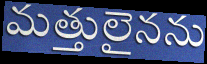
మత్తులైనను